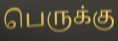
பெருக்கு